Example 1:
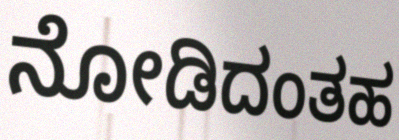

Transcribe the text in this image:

ನೋಡಿದಂತಹ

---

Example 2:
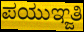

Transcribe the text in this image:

ಪಯುಞ್ಜತಿ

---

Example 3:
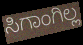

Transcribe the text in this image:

ಸಿಗಾಂಗಿಲ್ಲ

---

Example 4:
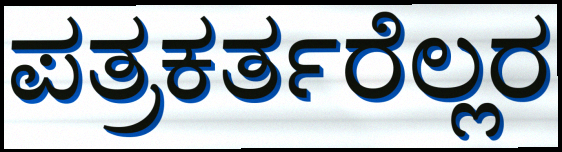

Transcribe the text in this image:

ಪತ್ರಕರ್ತರೆಲ್ಲರ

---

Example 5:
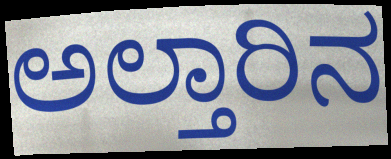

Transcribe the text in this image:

ಅಲ್ತಾರಿನ